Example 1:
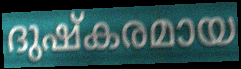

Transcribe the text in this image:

ദുഷ്കരമായ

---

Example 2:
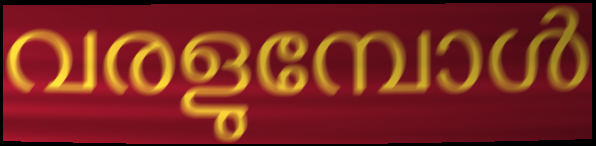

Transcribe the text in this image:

വരളുമ്പോൾ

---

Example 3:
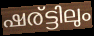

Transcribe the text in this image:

ഷര്ട്ടിലും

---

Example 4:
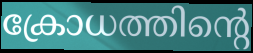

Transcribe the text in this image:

ക്രോധത്തിന്റെ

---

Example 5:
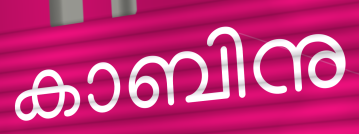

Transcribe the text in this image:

കാബിനു